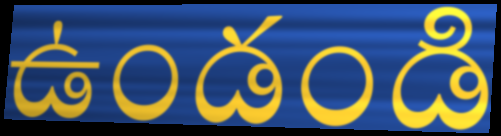
ఉండండి